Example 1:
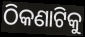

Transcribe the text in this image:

ଠିକଣାଟିକୁ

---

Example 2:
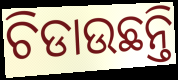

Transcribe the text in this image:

ଚିଡାଉଛନ୍ତି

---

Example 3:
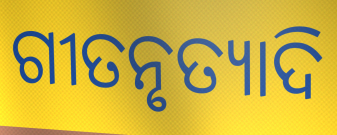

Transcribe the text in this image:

ଗୀତନୃତ୍ୟାଦି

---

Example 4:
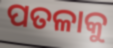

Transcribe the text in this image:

ପତଳାକୁ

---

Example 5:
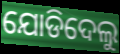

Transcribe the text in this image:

ଯୋଡିଦେଲୁ